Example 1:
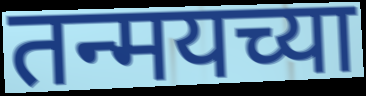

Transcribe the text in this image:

तन्मयच्या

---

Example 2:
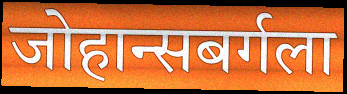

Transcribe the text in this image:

जोहान्सबर्गला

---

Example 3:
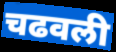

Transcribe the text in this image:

चढवली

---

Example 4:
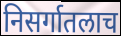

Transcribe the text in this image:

निसर्गातलाच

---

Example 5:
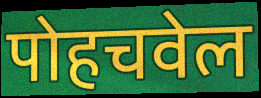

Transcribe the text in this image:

पोहचवेल